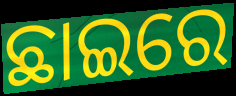
ଛାଇରେ